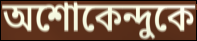
অশোকেন্দুকে